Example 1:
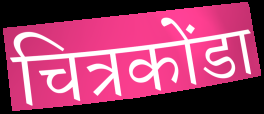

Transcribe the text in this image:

चित्रकोंडा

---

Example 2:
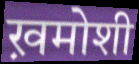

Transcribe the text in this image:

ख़मोशी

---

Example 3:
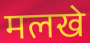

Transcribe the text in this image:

मलखे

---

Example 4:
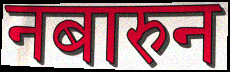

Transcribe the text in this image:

नबारुन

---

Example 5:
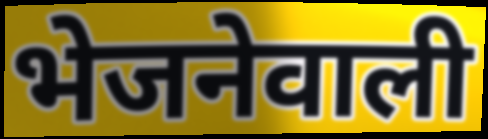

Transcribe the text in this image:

भेजनेवाली